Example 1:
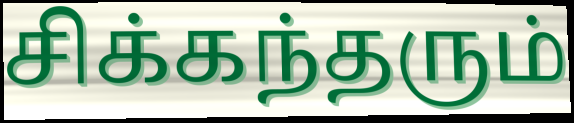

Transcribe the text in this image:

சிக்கந்தரும்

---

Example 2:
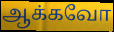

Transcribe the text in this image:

ஆக்கவோ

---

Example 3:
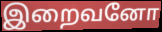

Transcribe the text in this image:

இறைவனோ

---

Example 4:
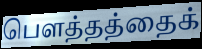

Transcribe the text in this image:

பௌத்தத்தைக்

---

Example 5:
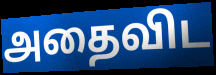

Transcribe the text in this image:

அதைவிட